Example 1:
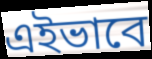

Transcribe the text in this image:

এইভাবে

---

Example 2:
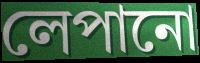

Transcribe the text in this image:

লেপানো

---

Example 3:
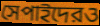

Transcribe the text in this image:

সেপাইদেরও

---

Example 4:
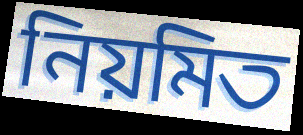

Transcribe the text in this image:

নিয়মিত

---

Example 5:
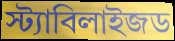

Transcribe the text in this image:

স্ট্যাবিলাইজড